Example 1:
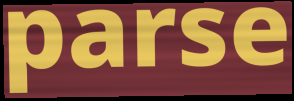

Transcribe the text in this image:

parse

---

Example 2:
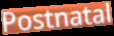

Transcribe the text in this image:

Postnatal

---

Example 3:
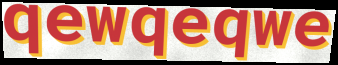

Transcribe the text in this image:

qewqeqwe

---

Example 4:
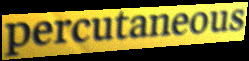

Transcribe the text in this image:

percutaneous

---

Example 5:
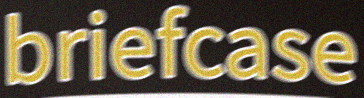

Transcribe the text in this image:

briefcase